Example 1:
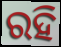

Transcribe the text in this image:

ରହି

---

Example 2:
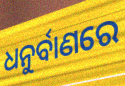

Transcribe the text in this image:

ଧନୁର୍ବାଣରେ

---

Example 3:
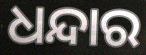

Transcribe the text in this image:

ଧନ୍ଦାର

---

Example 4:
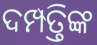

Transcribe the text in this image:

ଦମ୍ପତ୍ତିଙ୍କ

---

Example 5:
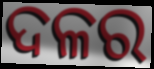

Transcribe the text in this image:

ଦଳର